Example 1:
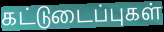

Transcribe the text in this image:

கட்டுடைப்புகள்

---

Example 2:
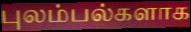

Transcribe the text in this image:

புலம்பல்களாக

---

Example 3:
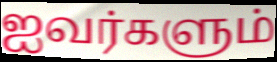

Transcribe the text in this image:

ஐவர்களும்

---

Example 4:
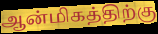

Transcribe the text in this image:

ஆன்மிகத்திற்கு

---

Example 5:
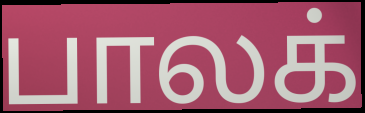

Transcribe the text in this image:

பாலக்